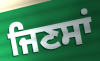
ਜਿਣਸਾਂ